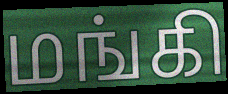
மங்கி